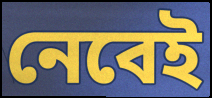
নেবেই